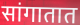
सांगातात